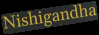
Nishigandha